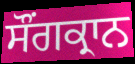
ਸੌਂਗਕ੍ਰਾਨ